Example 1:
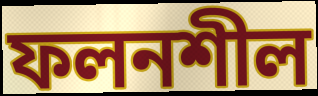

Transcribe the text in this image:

ফলনশীল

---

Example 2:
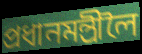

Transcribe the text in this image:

প্ৰধানমন্ত্ৰীলৈ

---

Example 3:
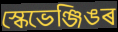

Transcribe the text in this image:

স্কেভেঞ্জিঙৰ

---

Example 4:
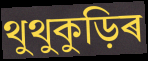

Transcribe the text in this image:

থুথুকুড়িৰ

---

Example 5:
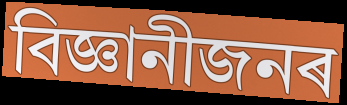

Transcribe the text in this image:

বিজ্ঞানীজনৰ